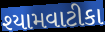
શ્યામવાટીકા